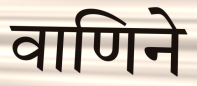
वाणिने